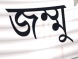
জম্মু